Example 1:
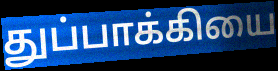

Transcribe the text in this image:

துப்பாக்கியை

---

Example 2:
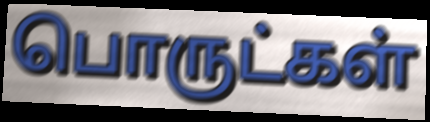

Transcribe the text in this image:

பொருட்கள்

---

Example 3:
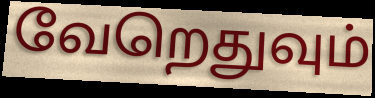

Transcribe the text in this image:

வேறெதுவும்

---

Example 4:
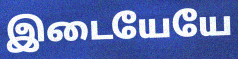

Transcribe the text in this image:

இடையேயே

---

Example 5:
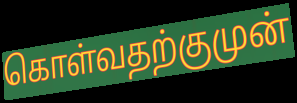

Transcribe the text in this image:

கொள்வதற்குமுன்